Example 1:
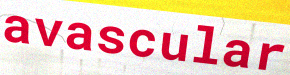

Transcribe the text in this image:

avascular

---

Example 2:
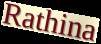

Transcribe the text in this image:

Rathina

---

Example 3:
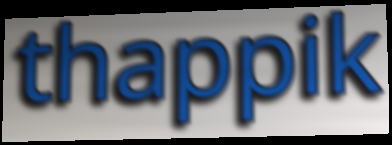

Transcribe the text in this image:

thappik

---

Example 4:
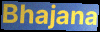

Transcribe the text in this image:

Bhajana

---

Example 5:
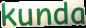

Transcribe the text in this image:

kunda